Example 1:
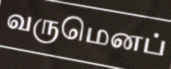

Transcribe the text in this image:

வருமெனப்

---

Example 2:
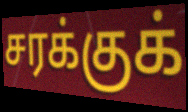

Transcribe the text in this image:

சரக்குக்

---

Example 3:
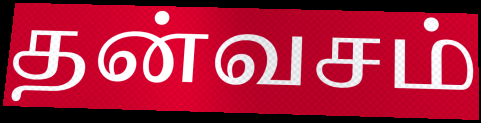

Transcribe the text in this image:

தன்வசம்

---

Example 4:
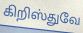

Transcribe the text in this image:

கிறிஸ்துவே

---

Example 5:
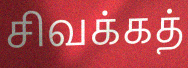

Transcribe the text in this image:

சிவக்கத்